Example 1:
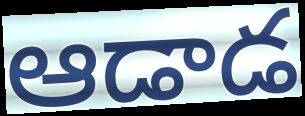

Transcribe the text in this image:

ఆడాడ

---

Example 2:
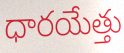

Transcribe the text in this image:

ధారయేత్తు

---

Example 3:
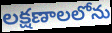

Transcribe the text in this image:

లక్షణాలలోను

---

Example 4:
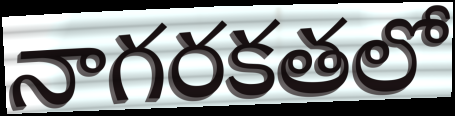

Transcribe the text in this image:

నాగరకతలో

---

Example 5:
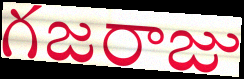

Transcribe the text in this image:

గజరాజు